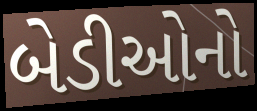
બેડીઓનો